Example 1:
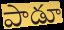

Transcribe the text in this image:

పాడూ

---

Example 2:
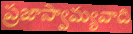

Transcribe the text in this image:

ప్రజాస్వామ్యవాది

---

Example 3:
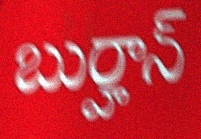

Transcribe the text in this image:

బుర్హాన్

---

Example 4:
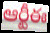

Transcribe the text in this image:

ఆర్టీఈ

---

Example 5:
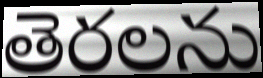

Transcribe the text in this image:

తెరలను